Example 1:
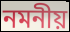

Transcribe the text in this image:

নমনীয়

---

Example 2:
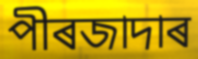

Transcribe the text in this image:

পীৰজাদাৰ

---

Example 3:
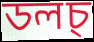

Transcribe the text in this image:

ডলচ্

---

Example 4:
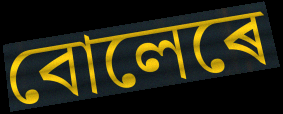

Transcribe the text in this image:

বোলেৰে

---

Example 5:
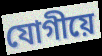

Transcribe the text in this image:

যোগীয়ে